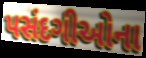
પસંદગીઓના